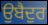
ਉਬੈਦੁਰ